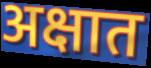
अक्षात